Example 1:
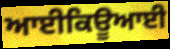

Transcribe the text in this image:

ਆਈਕਿਊਆਈ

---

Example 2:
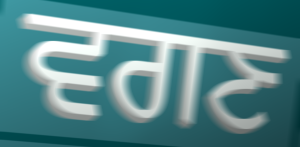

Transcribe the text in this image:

ਵਗਣ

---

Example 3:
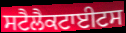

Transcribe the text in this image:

ਸਟੈਲੈਕਟਾਈਟਸ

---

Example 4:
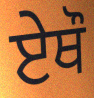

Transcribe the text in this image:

ਏਥੌ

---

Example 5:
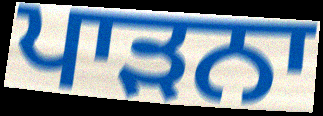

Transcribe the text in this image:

ਪਾੜਨਾ